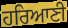
ਹਰਿਆਣੀ